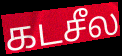
கடசீல